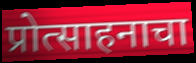
प्रोत्साहनाचा